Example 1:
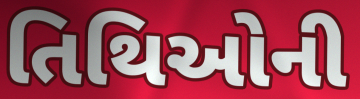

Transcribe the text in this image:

તિથિઓની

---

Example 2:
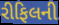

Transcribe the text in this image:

રીફિલની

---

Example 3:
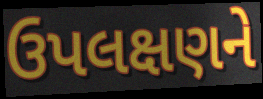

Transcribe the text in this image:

ઉપલક્ષણને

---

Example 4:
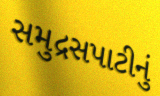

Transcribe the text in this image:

સમુદ્રસપાટીનું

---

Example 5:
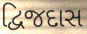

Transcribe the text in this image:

દ્વિજદાસ